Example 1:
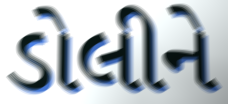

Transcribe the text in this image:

ડોલીને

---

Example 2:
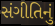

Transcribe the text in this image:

સંગીતિનું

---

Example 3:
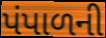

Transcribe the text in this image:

પંપાળની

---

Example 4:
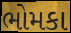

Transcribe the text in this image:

ભોમકા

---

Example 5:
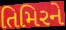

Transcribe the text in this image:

તિમિરને